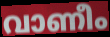
വാണീം